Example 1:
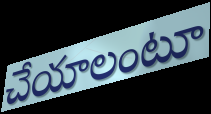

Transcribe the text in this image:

చేయాలంటూ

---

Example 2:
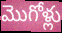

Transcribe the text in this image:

మొగోళ్లు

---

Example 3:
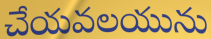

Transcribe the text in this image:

చేయవలయును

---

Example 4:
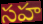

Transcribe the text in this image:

సహ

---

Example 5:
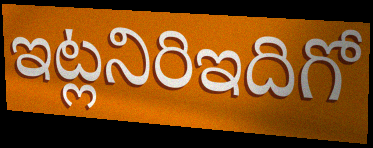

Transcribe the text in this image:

ఇట్లనిరిఇదిగో